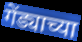
गेंड्याच्या